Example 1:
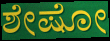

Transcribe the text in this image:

ಶೇಷೋ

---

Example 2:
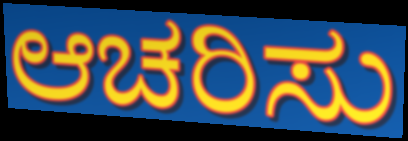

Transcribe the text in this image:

ಆಚರಿಸು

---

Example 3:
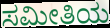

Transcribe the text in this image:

ಸಮೀತಿಯ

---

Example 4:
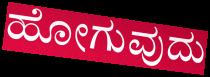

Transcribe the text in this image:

ಹೋಗುವುದು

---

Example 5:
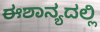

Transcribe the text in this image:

ಈಶಾನ್ಯದಲ್ಲಿ